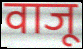
वाजू